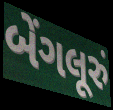
બેંગલૂરું